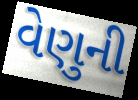
વેણુની